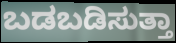
ಬಡಬಡಿಸುತ್ತಾ